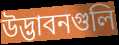
উদ্ভাবনগুলি